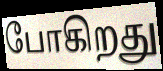
போகிறது